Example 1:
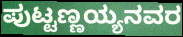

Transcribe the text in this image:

ಪುಟ್ಟಣ್ಣಯ್ಯನವರ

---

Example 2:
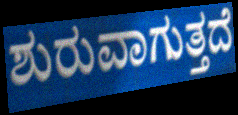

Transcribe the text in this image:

ಶುರುವಾಗುತ್ತದೆ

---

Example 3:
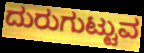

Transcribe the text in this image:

ದುರುಗುಟ್ಟುವ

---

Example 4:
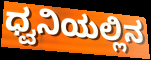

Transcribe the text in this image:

ಧ್ವನಿಯಲ್ಲಿನ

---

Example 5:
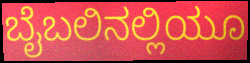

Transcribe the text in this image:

ಬೈಬಲಿನಲ್ಲಿಯೂ